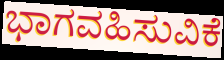
ಭಾಗವಹಿಸುವಿಕೆ